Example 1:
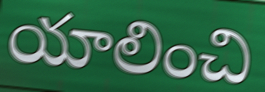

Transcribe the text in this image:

యాలించి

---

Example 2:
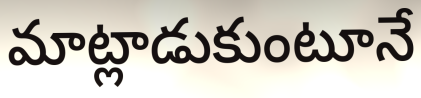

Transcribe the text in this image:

మాట్లాడుకుంటూనే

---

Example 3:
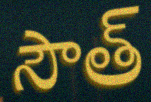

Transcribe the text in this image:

సౌత్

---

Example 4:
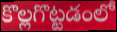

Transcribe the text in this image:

కొల్లగొట్టడంలో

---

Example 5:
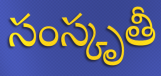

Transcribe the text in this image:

సంస్కృతీ